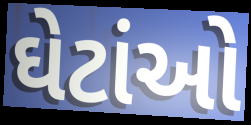
ઘેટાંઓ